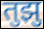
तुझु